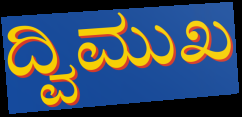
ದ್ವಿಮುಖ